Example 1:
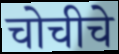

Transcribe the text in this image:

चोचीचे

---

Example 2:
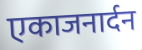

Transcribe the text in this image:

एकाजनार्दन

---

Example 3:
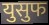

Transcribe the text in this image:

युसुफ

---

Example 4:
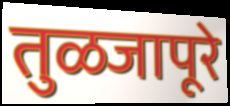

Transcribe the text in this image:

तुळजापूरे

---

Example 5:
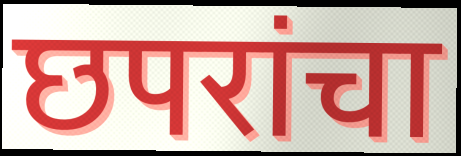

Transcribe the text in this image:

छपरांचा